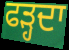
ਫੜ੍ਹਦਾ